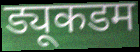
ड्यूकडम